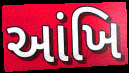
આંખિ